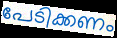
പേടിക്കണം